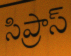
సిప్రాస్